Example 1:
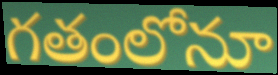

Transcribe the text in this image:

గతంలోనూ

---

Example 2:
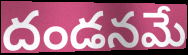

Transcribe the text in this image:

దండనమే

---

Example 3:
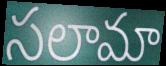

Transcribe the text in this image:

సలామా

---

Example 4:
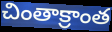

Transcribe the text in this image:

చింతాక్రాంత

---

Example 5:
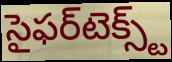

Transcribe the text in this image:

సైఫర్‌టెక్స్ట్